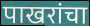
पाखरांचा